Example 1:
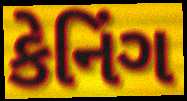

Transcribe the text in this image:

કેનિંગ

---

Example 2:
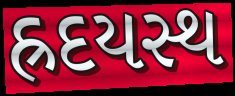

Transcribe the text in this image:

હ્રદયસ્થ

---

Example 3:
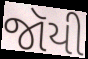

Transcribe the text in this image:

જૉયી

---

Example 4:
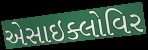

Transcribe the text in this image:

એસાઇક્લોવિર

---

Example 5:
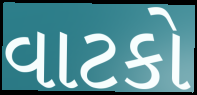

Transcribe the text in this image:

વાટકો